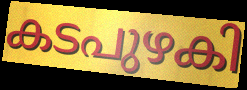
കടപുഴകി